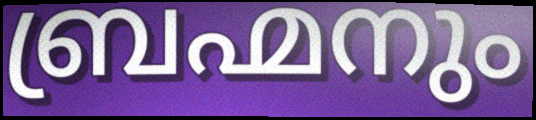
ബ്രഹ്മനും